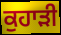
ਕੁਹਾੜੀ